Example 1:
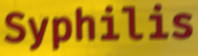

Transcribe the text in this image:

Syphilis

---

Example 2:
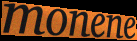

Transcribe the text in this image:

monene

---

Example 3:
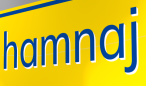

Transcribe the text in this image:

hamnaj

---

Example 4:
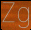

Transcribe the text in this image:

Zg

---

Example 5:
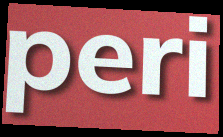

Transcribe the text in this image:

peri